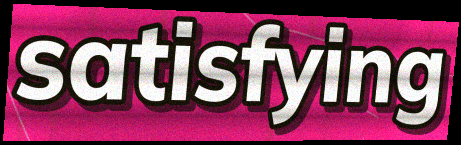
satisfying